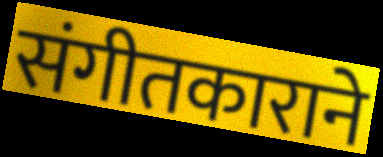
संगीतकाराने